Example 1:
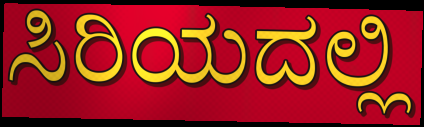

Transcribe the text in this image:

ಸಿರಿಯದಲ್ಲಿ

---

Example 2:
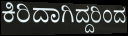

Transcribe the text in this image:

ಕಿರಿದಾಗಿದ್ದರಿಂದ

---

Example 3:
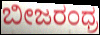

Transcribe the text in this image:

ಬೀಜರಂಧ್ರ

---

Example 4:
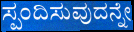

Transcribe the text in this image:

ಸ್ಪಂದಿಸುವುದನ್ನೇ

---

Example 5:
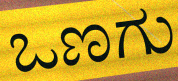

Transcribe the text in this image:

ಒಣಗು